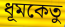
ধূমকেতু